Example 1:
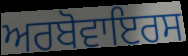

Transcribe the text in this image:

ਅਰਬੋਵਾਇਰਸ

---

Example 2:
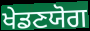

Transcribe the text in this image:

ਖੇਡਣਯੋਗ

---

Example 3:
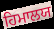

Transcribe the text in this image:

ਹਿਮਾਲਯ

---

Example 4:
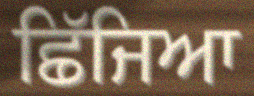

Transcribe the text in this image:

ਛਿੱਜਿਆ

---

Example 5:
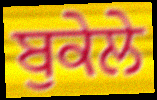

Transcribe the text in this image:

ਬੁਕੇਲੇ